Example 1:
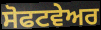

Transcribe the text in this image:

ਸੋਫਟਵੇਅਰ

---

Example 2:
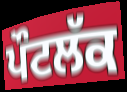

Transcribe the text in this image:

ਪੌਟਲੱਕ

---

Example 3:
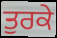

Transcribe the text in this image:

ਤੁਰਕੇ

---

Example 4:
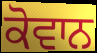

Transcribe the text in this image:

ਕੋਵਾਨ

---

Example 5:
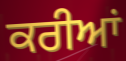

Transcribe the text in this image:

ਕਰੀਆਂ